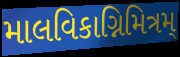
માલવિકાગ્નિમિત્રમ્